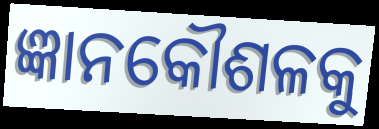
ଜ୍ଞାନକୌଶଳକୁ